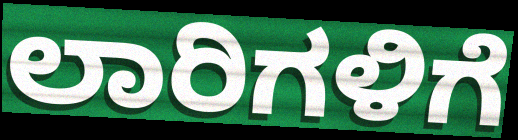
ಲಾರಿಗಳಿಗೆ